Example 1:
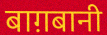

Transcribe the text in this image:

बाग़बानी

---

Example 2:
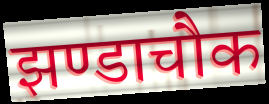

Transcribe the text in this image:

झण्डाचौक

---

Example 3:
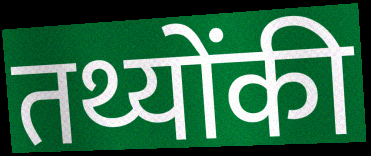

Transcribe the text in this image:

तथ्योंकी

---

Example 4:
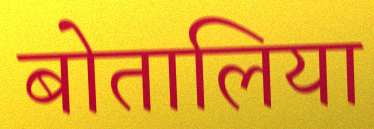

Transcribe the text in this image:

बोतालिया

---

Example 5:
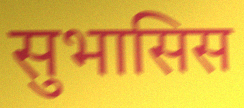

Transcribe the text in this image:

सुभासिस